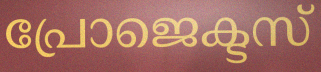
പ്രോജെക്ടസ്